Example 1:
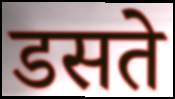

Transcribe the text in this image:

डसते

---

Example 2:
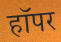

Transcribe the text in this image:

हॉपर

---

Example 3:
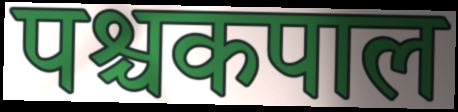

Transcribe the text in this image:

पश्चकपाल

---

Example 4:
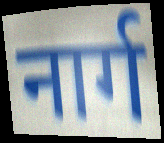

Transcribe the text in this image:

नार्ग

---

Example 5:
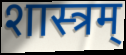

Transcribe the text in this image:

शास्त्रम्